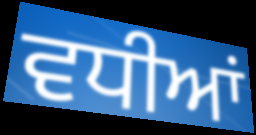
ਵਧੀਆਂ